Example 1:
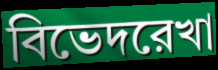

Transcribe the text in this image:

বিভেদরেখা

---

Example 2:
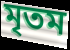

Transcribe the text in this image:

মৃতম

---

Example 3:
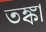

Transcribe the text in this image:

তঙ্কা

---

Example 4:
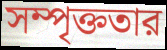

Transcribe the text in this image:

সম্পৃক্ততার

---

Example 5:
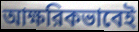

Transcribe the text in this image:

আক্ষরিকভাবেই